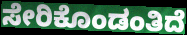
ಸೇರಿಕೊಂಡಂತಿದೆ